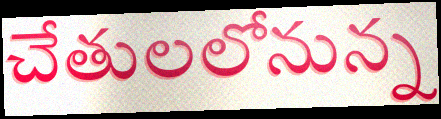
చేతులలోనున్న